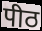
पीठ